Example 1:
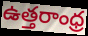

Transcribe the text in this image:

ఉత్తరాంధ్ర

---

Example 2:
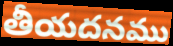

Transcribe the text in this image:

తీయదనము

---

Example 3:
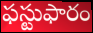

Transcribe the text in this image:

ఫస్టుఫారం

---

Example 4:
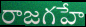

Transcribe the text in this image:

రాజగహే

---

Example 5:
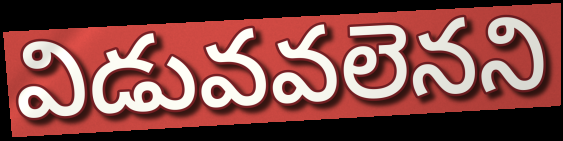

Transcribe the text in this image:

విడువవలెనని